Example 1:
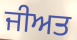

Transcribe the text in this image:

ਜੀਅਤ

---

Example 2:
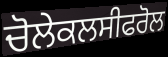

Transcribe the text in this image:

ਚੋਲੇਕਲਸੀਫਰੋਲ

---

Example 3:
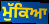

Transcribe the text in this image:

ਮੁੱਕਿਆ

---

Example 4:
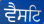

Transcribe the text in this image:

ਵੈਸਟਿ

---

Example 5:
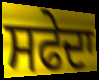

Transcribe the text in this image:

ਸਫੇਦਾ